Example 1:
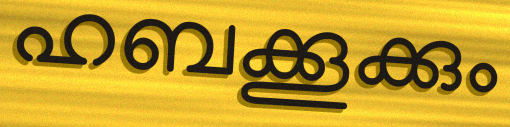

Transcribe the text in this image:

ഹബക്കൂക്കും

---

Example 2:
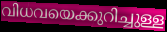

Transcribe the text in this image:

വിധവയെക്കുറിച്ചുള്ള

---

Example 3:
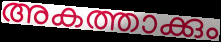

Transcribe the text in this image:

അകത്താക്കും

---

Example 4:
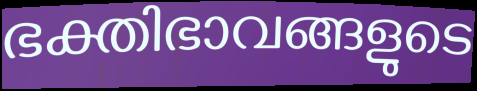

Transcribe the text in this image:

ഭക്തിഭാവങ്ങളുടെ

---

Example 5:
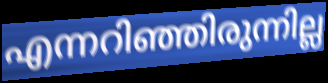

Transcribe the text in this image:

എന്നറിഞ്ഞിരുന്നില്ല